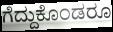
ಗೆದ್ದುಕೊಂಡರೂ